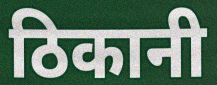
ठिकानी